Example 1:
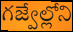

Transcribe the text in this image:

గజ్వేల్లోని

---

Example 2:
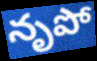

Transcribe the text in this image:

నృపో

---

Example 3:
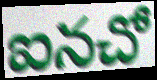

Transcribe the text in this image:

ఐనచో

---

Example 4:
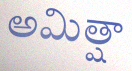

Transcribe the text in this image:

అమిత్షా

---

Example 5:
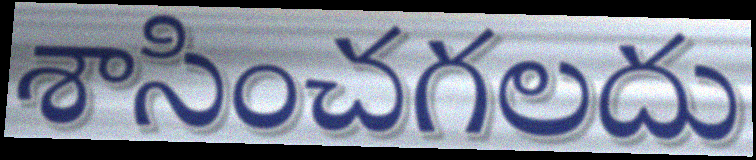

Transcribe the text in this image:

శాసించగలదు